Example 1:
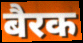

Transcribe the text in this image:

बैरक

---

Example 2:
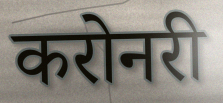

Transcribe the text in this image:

करोनरी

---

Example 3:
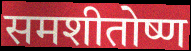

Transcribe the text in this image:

समशीतोष्ण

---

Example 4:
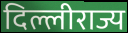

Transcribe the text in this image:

दिल्लीराज्य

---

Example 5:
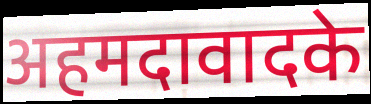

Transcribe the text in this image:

अहमदावादके